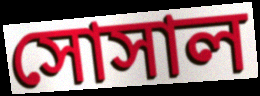
সোসাল